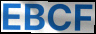
EBCF